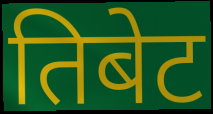
तिबेट